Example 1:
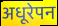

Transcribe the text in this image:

अधूरेपन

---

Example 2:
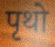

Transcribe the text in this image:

पृथो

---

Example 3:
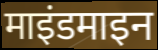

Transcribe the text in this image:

माइंडमाइन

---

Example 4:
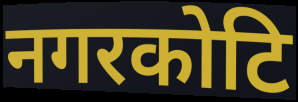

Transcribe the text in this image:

नगरकोटि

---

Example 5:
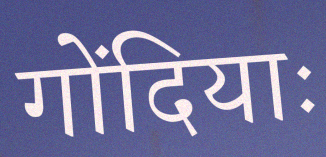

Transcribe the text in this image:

गोंदियाः